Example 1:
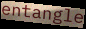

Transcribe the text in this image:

entangle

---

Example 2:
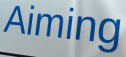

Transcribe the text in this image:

Aiming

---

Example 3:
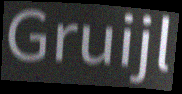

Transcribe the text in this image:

Gruijl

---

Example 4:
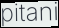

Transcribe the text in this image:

pitani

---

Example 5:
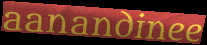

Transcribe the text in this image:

aanandinee